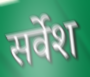
सर्वेश